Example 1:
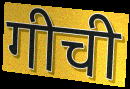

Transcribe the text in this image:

गीची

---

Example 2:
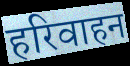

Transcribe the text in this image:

हरिवाहन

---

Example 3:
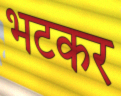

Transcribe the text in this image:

भटकर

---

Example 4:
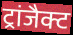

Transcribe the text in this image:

ट्रांजैक्ट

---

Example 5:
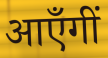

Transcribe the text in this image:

आएँगीं